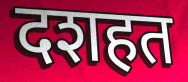
दशहत